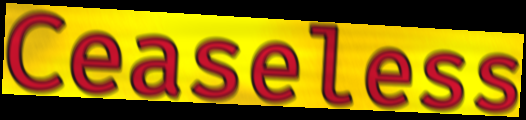
Ceaseless